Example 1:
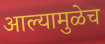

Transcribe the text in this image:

आल्यामुळेच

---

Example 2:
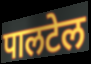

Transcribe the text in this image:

पालटेल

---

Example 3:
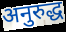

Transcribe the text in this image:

अनुरुद्ध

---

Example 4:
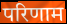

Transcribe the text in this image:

परिणाम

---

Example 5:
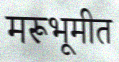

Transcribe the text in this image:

मरूभूमीत